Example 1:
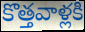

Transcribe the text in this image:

కొత్తవాళ్లకి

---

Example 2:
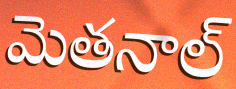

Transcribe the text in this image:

మెతనాల్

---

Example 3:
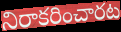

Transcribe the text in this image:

నిరాకరించారట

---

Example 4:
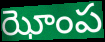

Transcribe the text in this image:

ఝోంప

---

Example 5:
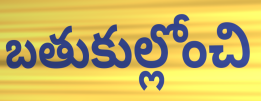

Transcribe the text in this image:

బతుకుల్లోంచి